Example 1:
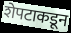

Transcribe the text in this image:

शेपटाकडून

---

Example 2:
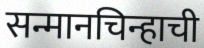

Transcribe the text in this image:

सन्मानचिन्हाची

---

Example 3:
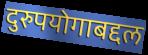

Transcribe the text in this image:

दुरुपयोगाबद्दल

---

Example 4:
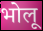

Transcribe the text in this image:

भोलू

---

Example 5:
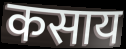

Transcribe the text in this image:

कसाय